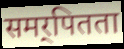
समर्पितता